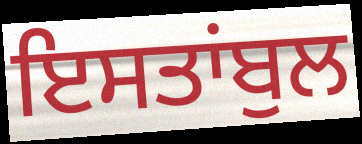
ਇਸਤਾਂਬੁਲ